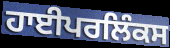
ਹਾਈਪਰਲਿੰਕਸ